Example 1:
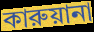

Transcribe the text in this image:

কারুয়ানা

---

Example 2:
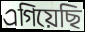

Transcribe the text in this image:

এগিয়েছি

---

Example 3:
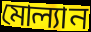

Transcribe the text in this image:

মোল্যান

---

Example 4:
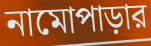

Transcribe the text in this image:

নামোপাড়ার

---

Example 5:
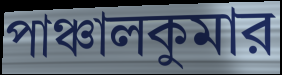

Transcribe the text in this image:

পাঞ্চালকুমার